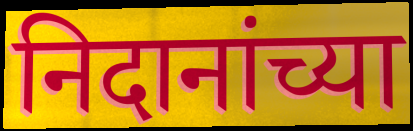
निदानांच्या